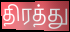
திரத்து